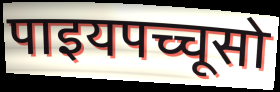
पाइयपच्चूसो